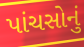
પાંચસોનું